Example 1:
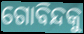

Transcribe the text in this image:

ଗୋବିନ୍ଦକୁ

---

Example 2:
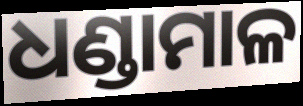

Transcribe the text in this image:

ଧଣ୍ଡାମାଳ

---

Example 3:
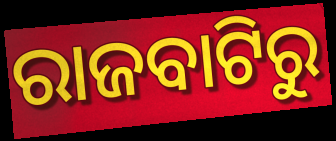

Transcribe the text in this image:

ରାଜବାଟିରୁ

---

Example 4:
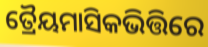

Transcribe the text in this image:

ତ୍ରୈୟମାସିକଭିତ୍ତିରେ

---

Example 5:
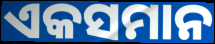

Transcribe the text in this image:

ଏକସମାନ